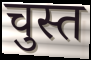
चुस्त